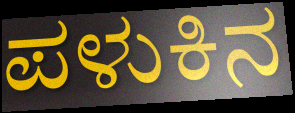
ಪಳುಕಿನ